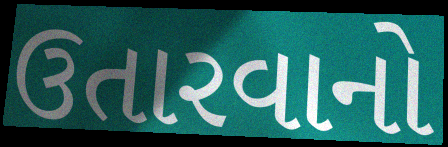
ઉતારવાનો